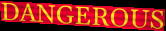
DANGEROUS